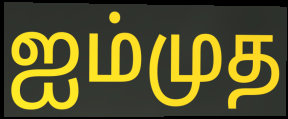
ஐம்முத